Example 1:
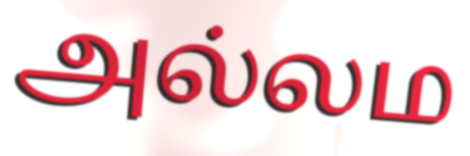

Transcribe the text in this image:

அல்லம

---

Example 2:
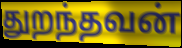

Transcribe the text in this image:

துறந்தவன்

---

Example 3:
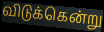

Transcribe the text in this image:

விடுக்கென்று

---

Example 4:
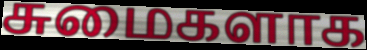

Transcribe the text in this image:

சுமைகளாக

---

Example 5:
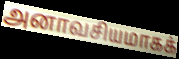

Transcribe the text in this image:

அனாவசியமாகக்